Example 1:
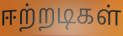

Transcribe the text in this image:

ஈற்றடிகள்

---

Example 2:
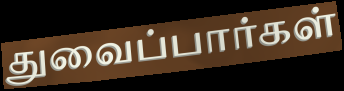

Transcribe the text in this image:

துவைப்பார்கள்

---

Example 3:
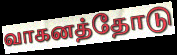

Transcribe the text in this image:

வாகனத்தோடு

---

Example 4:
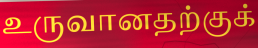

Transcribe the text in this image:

உருவானதற்குக்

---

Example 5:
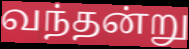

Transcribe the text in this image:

வந்தன்று